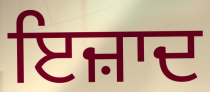
ਇਜ਼ਾਦ